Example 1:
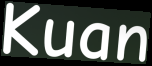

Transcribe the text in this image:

Kuan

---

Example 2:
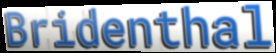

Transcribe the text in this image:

Bridenthal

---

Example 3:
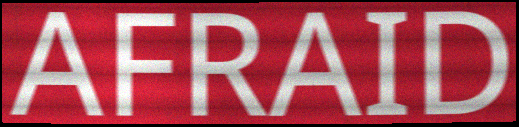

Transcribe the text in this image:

AFRAID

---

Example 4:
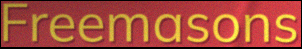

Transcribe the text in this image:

Freemasons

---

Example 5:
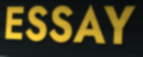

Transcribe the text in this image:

ESSAY